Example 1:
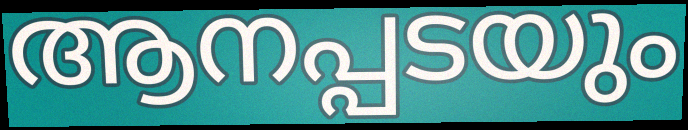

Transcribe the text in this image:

ആനപ്പടയും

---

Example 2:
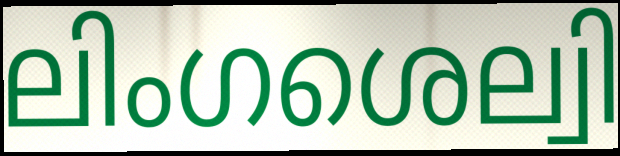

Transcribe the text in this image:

ലിംഗശെല്വി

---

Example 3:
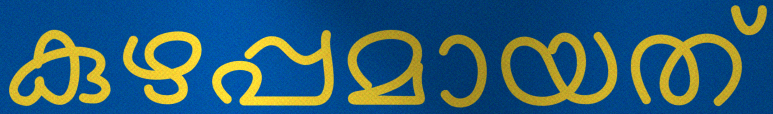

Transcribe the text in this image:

കുഴപ്പമായത്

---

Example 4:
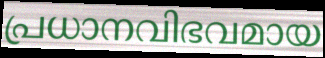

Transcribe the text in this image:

പ്രധാനവിഭവമായ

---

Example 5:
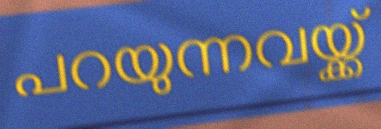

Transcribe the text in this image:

പറയുന്നവയ്ക്ക്